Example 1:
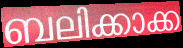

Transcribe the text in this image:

ബലിക്കാക്ക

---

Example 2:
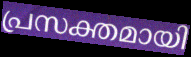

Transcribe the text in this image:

പ്രസക്തമായി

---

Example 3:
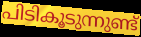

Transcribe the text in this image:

പിടികൂടുന്നുണ്ട്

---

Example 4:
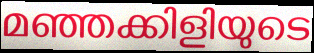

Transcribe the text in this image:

മഞ്ഞക്കിളിയുടെ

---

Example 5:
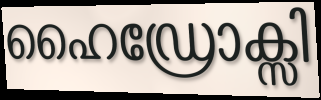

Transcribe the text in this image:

ഹൈഡ്രോക്സി